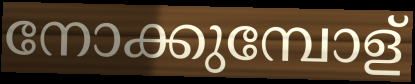
നോക്കുമ്പോള്